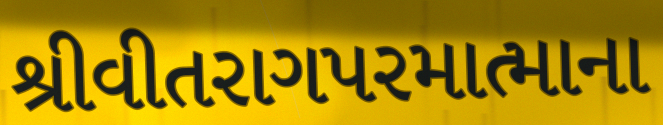
શ્રીવીતરાગપરમાત્માના